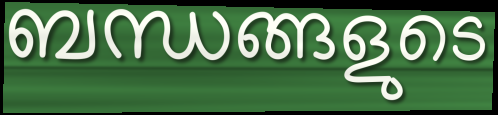
ബന്ധങ്ങളുടെ